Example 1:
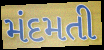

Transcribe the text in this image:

મંદમતી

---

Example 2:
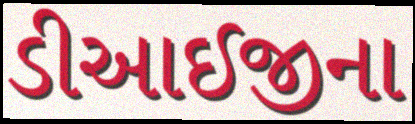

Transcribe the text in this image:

ડીઆઈજીના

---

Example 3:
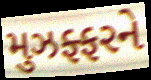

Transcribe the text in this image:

મુઝફ્ફરને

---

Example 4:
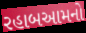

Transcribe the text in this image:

રહાબઆમનો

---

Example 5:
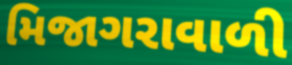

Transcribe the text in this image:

મિજાગરાવાળી